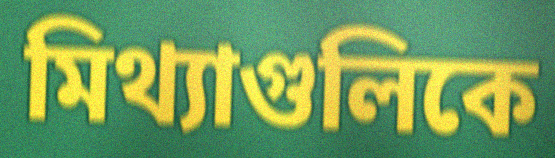
মিথ্যাগুলিকে